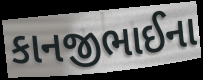
કાનજીભાઈના